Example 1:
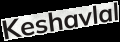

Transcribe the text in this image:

Keshavlal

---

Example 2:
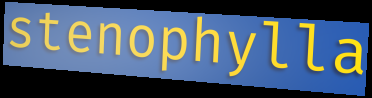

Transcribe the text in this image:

stenophylla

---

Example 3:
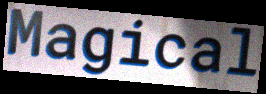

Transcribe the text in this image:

Magical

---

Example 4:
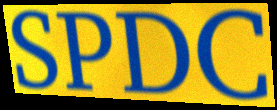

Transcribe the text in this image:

SPDC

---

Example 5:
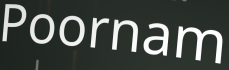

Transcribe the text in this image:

Poornam